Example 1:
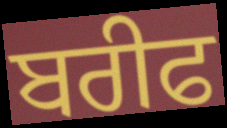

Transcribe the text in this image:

ਬਰੀਫ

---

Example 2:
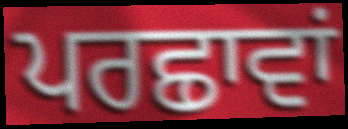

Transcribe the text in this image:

ਪਰਛਾਵਾਂ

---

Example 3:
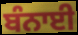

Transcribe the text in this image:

ਬੰਨਾਈ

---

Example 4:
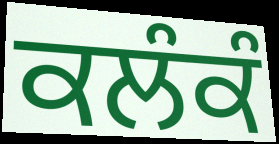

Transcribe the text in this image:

ਕਲੰਕੰ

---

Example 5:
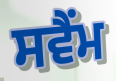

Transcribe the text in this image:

ਸਵੈਂਮ